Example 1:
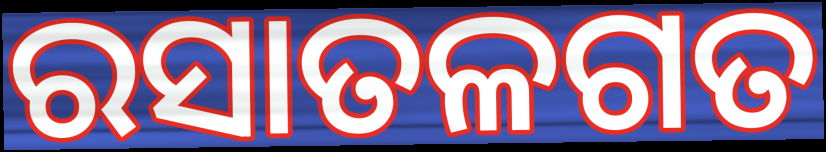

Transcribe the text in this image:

ରସାତଳଗତ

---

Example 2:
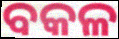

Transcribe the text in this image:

ବକଳ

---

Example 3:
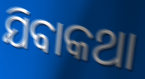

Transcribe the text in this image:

ଯିବାକଥା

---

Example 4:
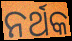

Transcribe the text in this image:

ନର୍ଥକ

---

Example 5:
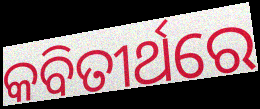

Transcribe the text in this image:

କବିତୀର୍ଥରେ